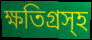
ক্ষতিগ্রস্হ